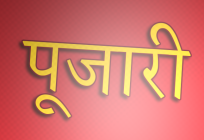
पूजारी